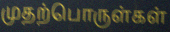
முதற்பொருள்கள்